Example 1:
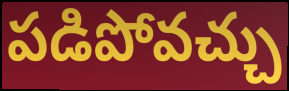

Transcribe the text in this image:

పడిపోవచ్చు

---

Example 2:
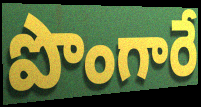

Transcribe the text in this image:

పొంగారే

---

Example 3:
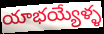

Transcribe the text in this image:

యాభయ్యేళ్ళ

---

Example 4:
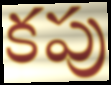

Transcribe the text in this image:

కపు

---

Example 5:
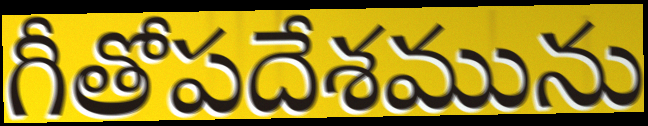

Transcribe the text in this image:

గీతోపదేశమును